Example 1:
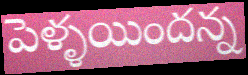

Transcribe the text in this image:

పెళ్ళయిందన్న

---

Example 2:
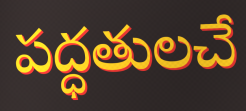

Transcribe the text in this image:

పద్ధతులచే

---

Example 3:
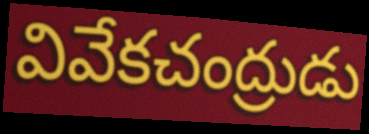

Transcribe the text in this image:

వివేకచంద్రుడు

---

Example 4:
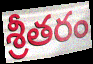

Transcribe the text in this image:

శ్రీతరం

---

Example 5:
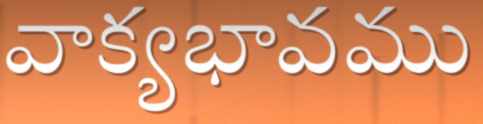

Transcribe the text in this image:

వాక్యభావము